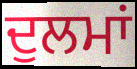
ਦੁਲਮਾਂ